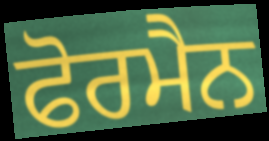
ਫੋਰਮੈਨ